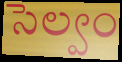
సెల్వం